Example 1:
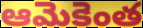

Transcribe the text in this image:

ఆమెకెంత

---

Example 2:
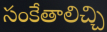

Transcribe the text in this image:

సంకేతాలిచ్చి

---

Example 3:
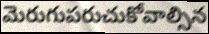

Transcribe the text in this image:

మెరుగుపరుచుకోవాల్సిన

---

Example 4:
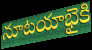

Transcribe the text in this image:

నూటయాభైకి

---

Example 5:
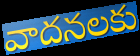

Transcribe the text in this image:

వాదనలకు